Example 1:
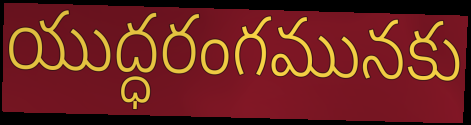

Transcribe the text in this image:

యుద్ధరంగమునకు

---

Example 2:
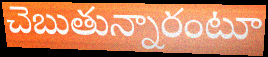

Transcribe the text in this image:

చెబుతున్నారంటూ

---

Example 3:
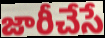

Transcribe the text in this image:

జారీచేసే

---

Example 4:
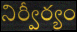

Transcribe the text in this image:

నిర్వీర్యం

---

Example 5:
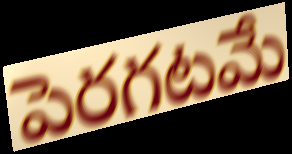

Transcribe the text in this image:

పెరగటమే